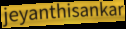
jeyanthisankar